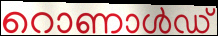
റൊണാൾഡ്